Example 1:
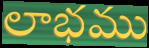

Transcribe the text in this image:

లాభము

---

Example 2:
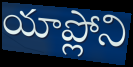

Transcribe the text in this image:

యాప్లోని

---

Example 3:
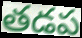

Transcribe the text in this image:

తడప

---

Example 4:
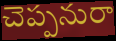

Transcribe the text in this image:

చెప్పనురా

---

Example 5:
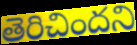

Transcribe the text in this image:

తెరిచిందని